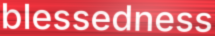
blessedness